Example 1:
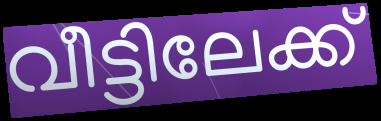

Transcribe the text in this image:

വീട്ടിലേക്ക്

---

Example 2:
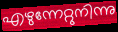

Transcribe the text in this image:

എഴുന്നേറ്റുനിന്നു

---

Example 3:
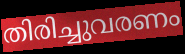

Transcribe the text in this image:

തിരിച്ചുവരണം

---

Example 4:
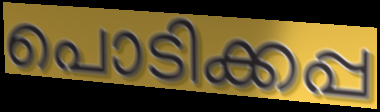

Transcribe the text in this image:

പൊടിക്കപ്പ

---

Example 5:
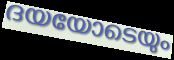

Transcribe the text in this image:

ദയയോടെയും